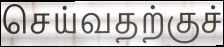
செய்வதற்குச்